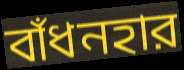
বাঁধনহার